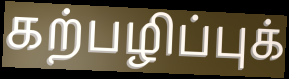
கற்பழிப்புக்